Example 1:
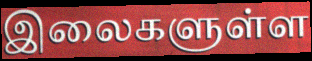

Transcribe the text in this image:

இலைகளுள்ள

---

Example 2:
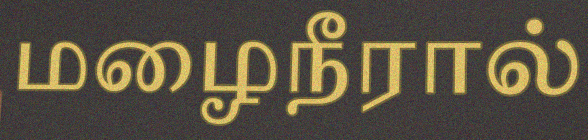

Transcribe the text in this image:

மழைநீரால்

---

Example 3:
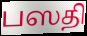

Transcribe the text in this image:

பஸதி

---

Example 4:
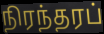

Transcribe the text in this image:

நிரந்தரப்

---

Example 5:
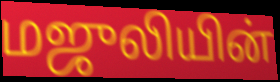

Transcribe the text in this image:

மஜுலியின்